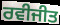
ਰਵੀਜੀਤ